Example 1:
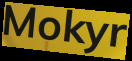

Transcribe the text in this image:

Mokyr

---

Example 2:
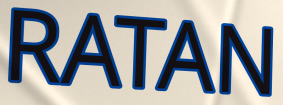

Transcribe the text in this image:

RATAN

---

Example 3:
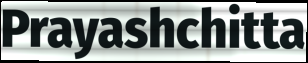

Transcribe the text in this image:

Prayashchitta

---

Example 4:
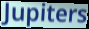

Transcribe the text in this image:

Jupiters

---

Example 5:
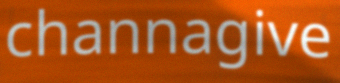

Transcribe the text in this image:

channagive